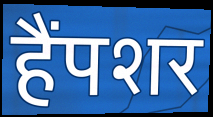
हैंपशर